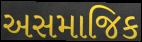
અસમાજિક